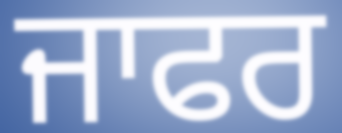
ਜਾਫਰ